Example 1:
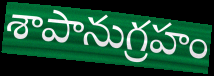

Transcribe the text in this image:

శాపానుగ్రహం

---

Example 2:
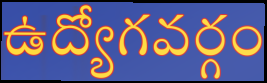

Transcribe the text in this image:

ఉద్యోగవర్గం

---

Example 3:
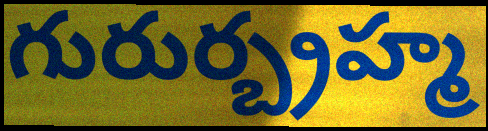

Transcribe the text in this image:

గురుర్బ్రహ్మ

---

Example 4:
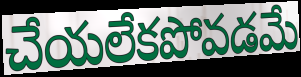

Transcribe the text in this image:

చేయలేకపోవడమే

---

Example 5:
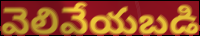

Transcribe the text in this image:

వెలివేయబడి